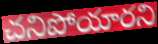
చనిపోయారని